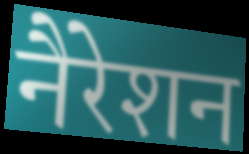
नैरेशन